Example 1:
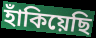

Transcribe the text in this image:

হাঁকিয়েছি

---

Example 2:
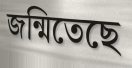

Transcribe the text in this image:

জন্মিতেছে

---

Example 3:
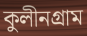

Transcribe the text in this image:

কুলীনগ্রাম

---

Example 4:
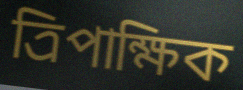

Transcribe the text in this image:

ত্রিপাক্ষিক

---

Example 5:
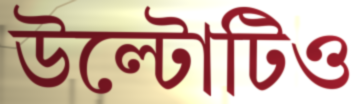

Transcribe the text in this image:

উল্টোটিও